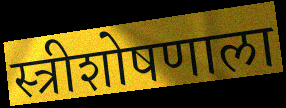
स्त्रीशोषणाला